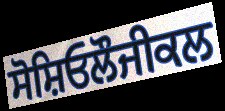
ਸੋਸ਼ਿਓਲੌਜੀਕਲ